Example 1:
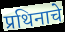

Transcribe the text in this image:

प्रथिनाचे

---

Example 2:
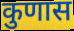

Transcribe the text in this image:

कुणास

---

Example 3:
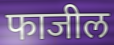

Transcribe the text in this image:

फाजील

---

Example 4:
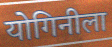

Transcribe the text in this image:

योगिनीला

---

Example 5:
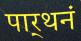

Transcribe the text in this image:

पार्थनं